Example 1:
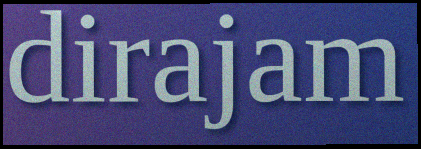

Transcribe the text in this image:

dirajam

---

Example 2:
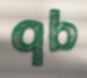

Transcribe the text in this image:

qb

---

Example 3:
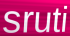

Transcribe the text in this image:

sruti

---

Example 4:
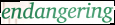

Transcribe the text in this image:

endangering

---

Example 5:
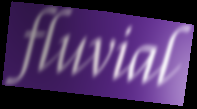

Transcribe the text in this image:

fluvial